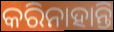
କରିନାହାନ୍ତି